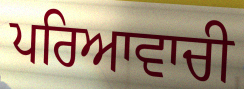
ਪਰਿਆਵਾਚੀ